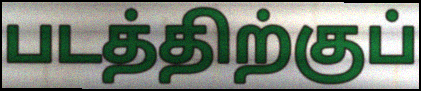
படத்திற்குப்